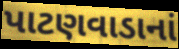
પાટણવાડાનાં